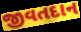
જીવતદાન